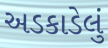
અડકાડેલું